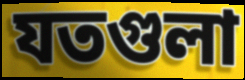
যতগুলা